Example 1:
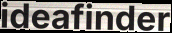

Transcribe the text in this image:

ideafinder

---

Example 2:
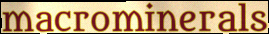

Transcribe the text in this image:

macrominerals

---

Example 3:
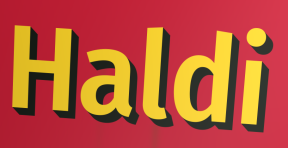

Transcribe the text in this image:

Haldi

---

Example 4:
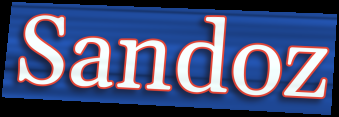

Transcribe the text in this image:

Sandoz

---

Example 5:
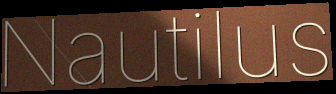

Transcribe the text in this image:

Nautilus